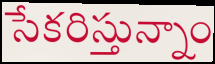
సేకరిస్తున్నాం